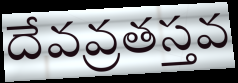
దేవవ్రతస్తవ